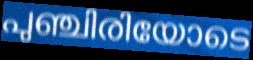
പുഞ്ചിരിയോടെ